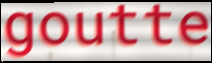
goutte